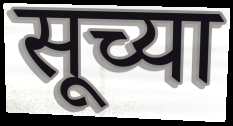
सूच्या